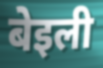
बेइली